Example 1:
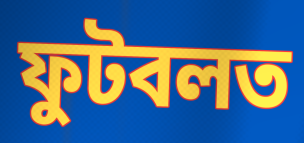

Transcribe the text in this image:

ফুটবলত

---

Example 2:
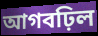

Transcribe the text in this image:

আগবঢ়িল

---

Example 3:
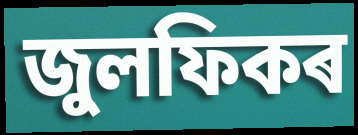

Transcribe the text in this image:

জুলফিকৰ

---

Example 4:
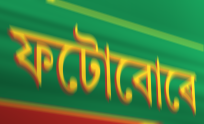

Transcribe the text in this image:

ফটোবোৰে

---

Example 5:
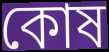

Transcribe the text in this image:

কোষ